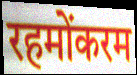
रहमोंकरम